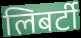
लिबर्टी